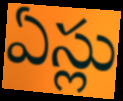
ఏస్లు